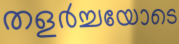
തളർച്ചയോടെ